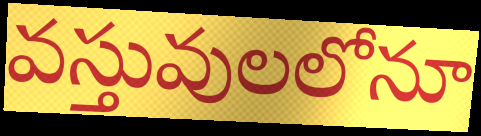
వస్తువులలోనూ